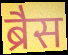
ब्रैस